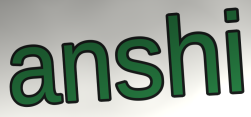
anshi